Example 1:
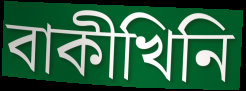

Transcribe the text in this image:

বাকীখিনি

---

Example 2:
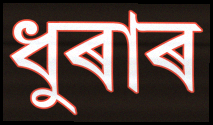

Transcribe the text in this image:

ধুৰাৰ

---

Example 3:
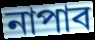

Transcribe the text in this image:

নাপাব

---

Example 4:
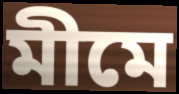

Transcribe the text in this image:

মীমে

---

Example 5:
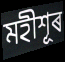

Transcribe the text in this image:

মহীশূৰ